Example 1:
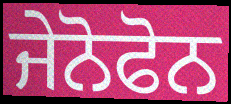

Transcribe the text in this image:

ਜੇਨੋਫੋਨ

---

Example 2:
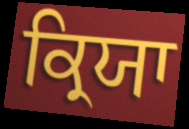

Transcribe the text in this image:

ਕ੍ਰਿਯਾ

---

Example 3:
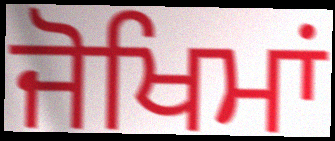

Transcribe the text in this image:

ਜੋਖਿਮਾਂ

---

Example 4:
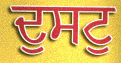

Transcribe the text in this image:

ਦੁਸਟੁ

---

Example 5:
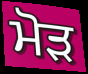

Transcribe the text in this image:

ਮੋੜ